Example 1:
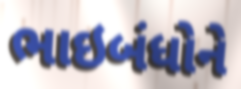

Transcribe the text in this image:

ભાઇબંધોને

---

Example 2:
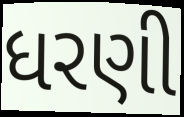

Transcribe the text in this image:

ધરણી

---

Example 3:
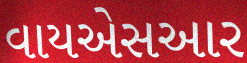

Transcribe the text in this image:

વાયએસઆર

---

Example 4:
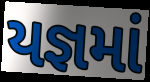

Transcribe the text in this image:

યજ્ઞમાં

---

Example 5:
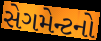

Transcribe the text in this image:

સેગમેન્ટનો